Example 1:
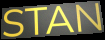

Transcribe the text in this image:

STAN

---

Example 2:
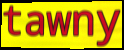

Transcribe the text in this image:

tawny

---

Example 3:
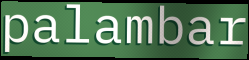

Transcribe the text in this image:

palambar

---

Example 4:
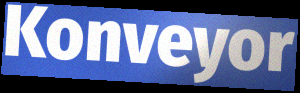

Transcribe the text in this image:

Konveyor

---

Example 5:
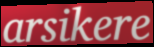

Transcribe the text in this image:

arsikere